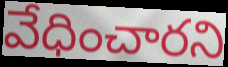
వేధించారని